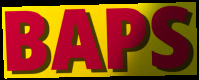
BAPS